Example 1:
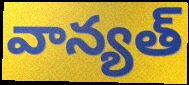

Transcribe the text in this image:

వాన్యత్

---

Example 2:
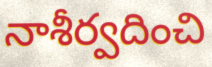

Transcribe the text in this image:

నాశీర్వదించి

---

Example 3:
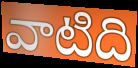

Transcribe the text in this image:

వాటిది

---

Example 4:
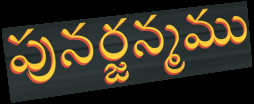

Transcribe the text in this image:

పునర్జన్మము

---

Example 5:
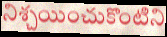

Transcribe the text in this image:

నిశ్చయించుకొంటిని